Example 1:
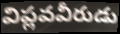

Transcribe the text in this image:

విప్లవవీరుడు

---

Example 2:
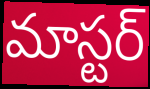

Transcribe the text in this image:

మాస్టర్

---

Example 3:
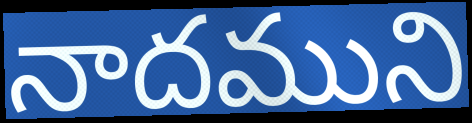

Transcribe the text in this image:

నాదముని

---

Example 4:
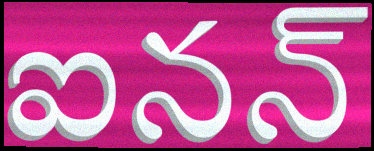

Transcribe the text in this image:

ఐనన్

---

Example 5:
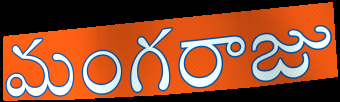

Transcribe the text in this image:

మంగరాజు